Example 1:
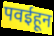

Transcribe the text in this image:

पवईहून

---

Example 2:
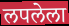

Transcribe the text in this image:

लपलेला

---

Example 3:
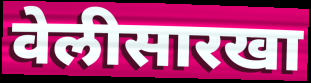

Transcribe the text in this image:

वेलीसारखा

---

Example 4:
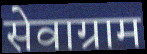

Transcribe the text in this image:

सेवाग्राम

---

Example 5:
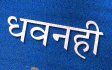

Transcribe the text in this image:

धवनही